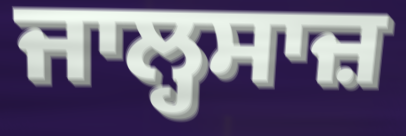
ਜਾਲ੍ਹਸਾਜ਼